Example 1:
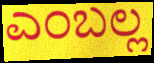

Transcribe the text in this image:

ಎಂಬಲ್ಲ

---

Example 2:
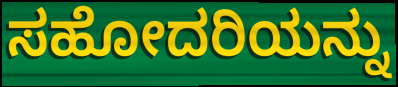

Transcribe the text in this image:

ಸಹೋದರಿಯನ್ನು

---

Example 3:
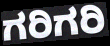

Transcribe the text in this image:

ಗರಿಗರಿ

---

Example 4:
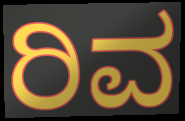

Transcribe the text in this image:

ರಿವ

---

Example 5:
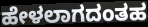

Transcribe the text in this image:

ಹೇಳಲಾಗದಂತಹ